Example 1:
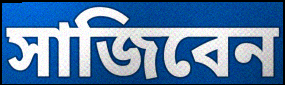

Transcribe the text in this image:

সাজিবেন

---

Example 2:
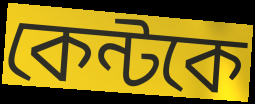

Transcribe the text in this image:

কেন্টকে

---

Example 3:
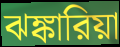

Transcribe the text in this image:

ঝঙ্কারিয়া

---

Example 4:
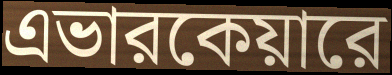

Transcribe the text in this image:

এভারকেয়ারে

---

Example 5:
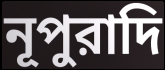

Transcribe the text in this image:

নূপুরাদি